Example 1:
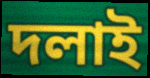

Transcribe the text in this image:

দলাই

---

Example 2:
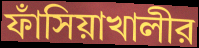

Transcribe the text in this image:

ফাঁসিয়াখালীর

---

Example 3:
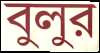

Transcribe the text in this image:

বুলুর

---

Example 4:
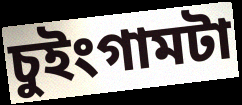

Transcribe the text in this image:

চুইংগামটা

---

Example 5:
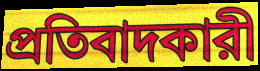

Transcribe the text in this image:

প্রতিবাদকারী